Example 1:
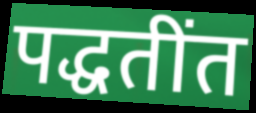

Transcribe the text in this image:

पद्धतींत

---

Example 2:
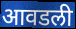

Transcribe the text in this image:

आवडली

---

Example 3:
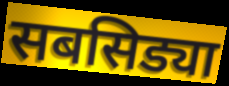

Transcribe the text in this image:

सबसिड्या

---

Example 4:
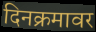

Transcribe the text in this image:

दिनक्रमावर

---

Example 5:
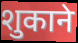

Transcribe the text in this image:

शुकाने